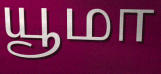
யூமா